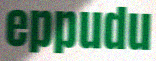
eppudu